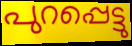
പുറപ്പെട്ടു